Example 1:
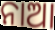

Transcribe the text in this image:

ନାଆ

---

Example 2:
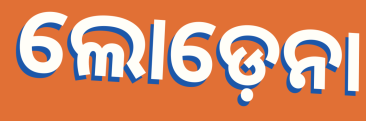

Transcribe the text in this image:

ଲୋଡ଼େନା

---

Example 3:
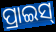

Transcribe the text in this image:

ପ୍ରାଇସ୍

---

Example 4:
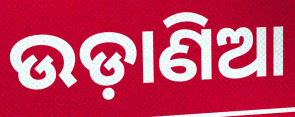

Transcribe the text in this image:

ଉଡ଼ାଣିଆ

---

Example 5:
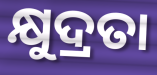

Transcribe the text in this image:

କ୍ଷୁଦ୍ରତା